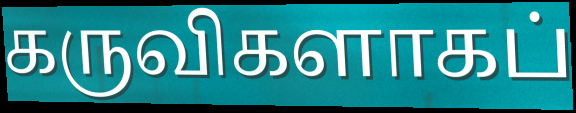
கருவிகளாகப்